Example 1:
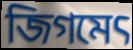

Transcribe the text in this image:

জিগমেৎ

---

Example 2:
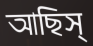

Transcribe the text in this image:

আছিস্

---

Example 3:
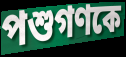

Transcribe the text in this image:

পশুগণকে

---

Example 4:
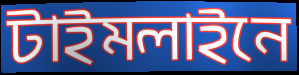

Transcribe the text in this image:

টাইমলাইনে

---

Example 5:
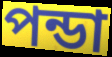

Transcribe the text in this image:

পন্ডা